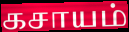
கசாயம்